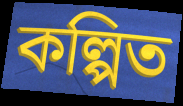
কল্পিত